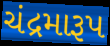
ચંદ્રમારૂપ